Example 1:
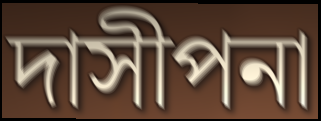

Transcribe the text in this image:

দাসীপনা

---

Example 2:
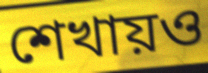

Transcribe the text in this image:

শেখায়ও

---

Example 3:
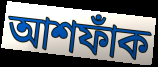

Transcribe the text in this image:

আশফাঁক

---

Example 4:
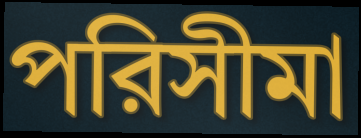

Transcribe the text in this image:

পরিসীমা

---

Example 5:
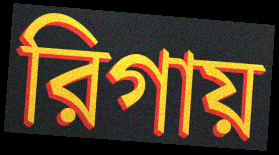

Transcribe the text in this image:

রিগায়